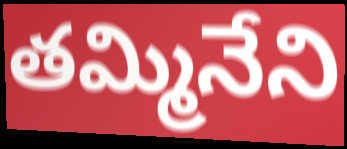
తమ్మినేని